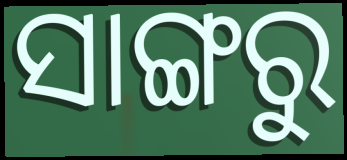
ସାଙ୍ଗରୁ